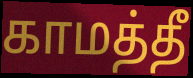
காமத்தீ